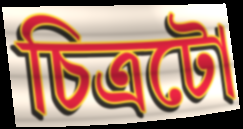
চিত্ৰটো